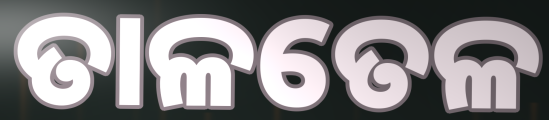
ତାଳତେଳ